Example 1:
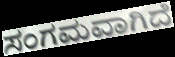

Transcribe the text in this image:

ಸಂಗಮವಾಗಿದೆ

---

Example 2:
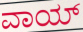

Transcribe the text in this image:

ವಾಯ್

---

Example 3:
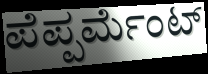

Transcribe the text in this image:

ಪೆಪ್ಪರ್ಮೆಂಟ್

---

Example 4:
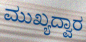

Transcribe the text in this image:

ಮುಖ್ಯದ್ವಾರ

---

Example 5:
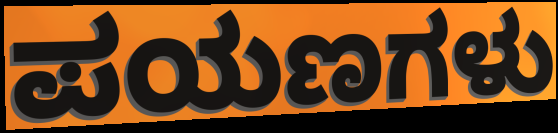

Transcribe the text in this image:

ಪಯಣಗಳು